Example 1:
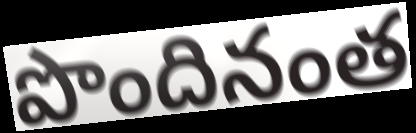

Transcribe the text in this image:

పొందినంత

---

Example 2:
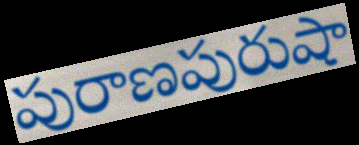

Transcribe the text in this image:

పురాణపురుషా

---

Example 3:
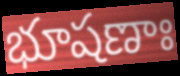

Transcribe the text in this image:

భూషణాః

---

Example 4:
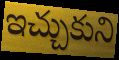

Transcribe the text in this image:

ఇచ్చుకుని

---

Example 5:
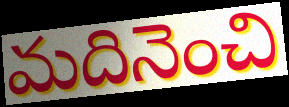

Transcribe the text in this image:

మదినెంచి